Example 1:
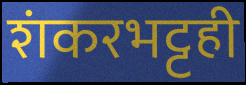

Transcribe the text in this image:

शंकरभट्टही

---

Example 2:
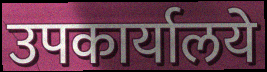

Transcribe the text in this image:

उपकार्यालये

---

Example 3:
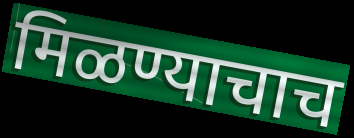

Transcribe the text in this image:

मिळण्याचाच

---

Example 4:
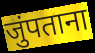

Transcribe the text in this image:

जुंपताना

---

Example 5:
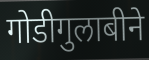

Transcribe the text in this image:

गोडीगुलाबीने